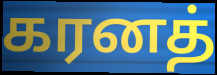
கரனத்